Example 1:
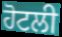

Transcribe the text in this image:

ਹੋਟਲੀ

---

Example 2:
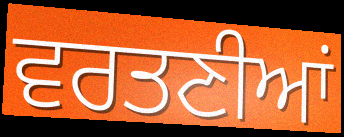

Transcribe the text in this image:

ਵਰਤਣੀਆਂ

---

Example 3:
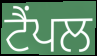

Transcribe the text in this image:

ਟੈਂਪਲ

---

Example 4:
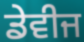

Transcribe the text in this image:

ਡੇਵੀਜ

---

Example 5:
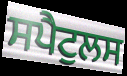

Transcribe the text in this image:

ਸਪੈਟੁਲਸ